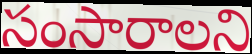
సంసారాలని